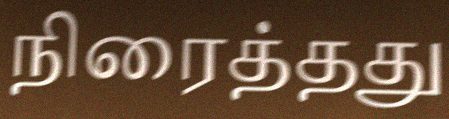
நிரைத்தது